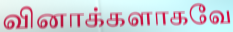
வினாக்களாகவே